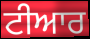
ਟੀਆਰ